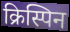
क्रिस्पिन